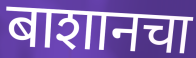
बाशानचा